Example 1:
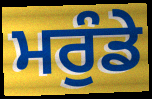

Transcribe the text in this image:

ਮਰੁੰਡੇ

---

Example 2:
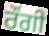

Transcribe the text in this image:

ਰੌਂਗੀ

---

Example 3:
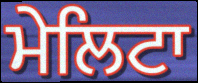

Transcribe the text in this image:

ਮੇਲਿਟਾ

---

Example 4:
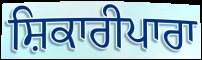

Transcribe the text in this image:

ਸ਼ਿਕਾਰੀਪਾਰਾ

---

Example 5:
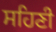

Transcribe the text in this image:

ਸਹਿਣੀ